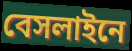
বেসলাইনে